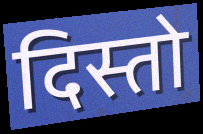
दिस्तो